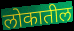
लोकातील